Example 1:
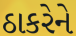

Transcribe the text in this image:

ઠાકરેને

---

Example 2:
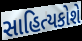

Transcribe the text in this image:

સાહિત્યકોશે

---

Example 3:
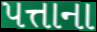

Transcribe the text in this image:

પત્તાના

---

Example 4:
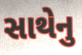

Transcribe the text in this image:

સાથેનુ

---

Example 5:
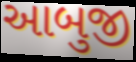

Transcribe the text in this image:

આબુજી